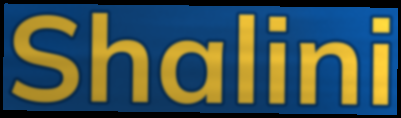
Shalini